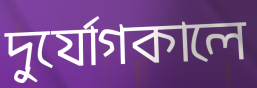
দুর্যোগকালে